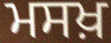
ਮਸਖ਼